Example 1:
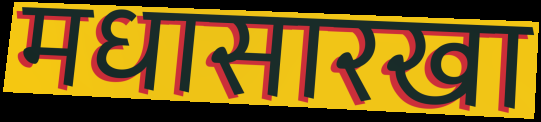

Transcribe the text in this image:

मधासारखा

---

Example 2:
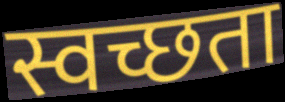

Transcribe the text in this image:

स्वच्छता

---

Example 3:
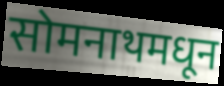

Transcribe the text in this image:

सोमनाथमधून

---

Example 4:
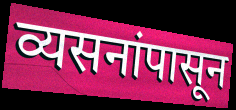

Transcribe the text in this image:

व्यसनांपासून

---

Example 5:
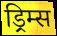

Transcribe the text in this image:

ड्रिम्स